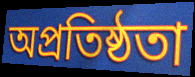
অপ্রতিষ্ঠতা